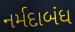
નર્મદાબંધ